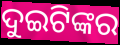
ଦୁଇଟିଙ୍କର